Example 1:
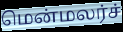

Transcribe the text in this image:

மென்மலர்ச்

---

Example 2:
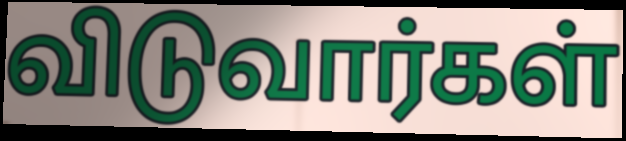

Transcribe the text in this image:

விடுவார்கள்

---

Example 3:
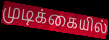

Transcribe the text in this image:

முடிக்கையில்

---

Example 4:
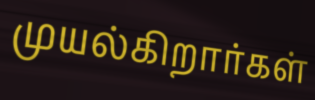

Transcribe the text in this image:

முயல்கிறார்கள்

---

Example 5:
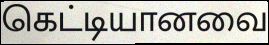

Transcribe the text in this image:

கெட்டியானவை